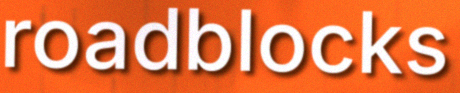
roadblocks